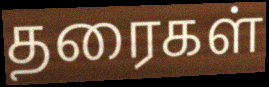
தரைகள்